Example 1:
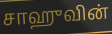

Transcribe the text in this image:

சாஹுவின்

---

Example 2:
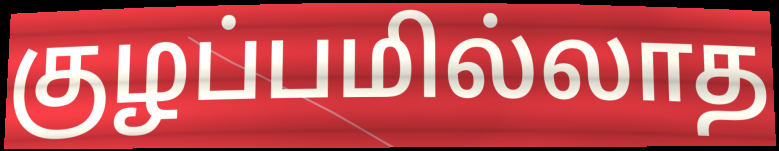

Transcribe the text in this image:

குழப்பமில்லாத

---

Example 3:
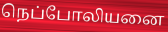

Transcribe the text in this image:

நெப்போலியனை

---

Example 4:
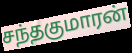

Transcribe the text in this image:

சந்தகுமாரன்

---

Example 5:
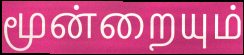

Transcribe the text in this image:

மூன்றையும்